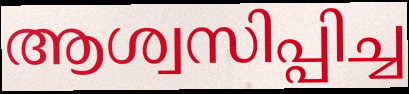
ആശ്വസിപ്പിച്ച